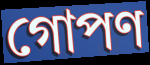
গোপণ